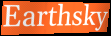
Earthsky